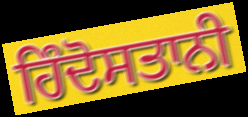
ਹਿੰਦੋਸਤਾਨੀ